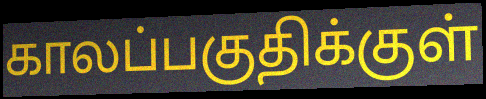
காலப்பகுதிக்குள்